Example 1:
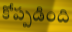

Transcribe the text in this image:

కోప్పడింది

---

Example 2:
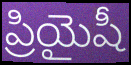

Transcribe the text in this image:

ప్రియైషీ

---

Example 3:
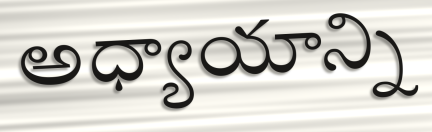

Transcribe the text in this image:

అధ్యాయాన్ని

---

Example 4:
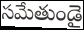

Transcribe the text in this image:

సమేతుండై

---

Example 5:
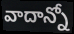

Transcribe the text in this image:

వాదాన్నో